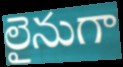
లైనుగా